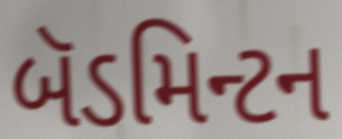
બૅડમિન્ટન